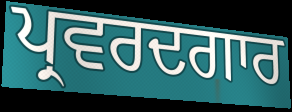
ਪ੍ਰਵਰਦਗਾਰ